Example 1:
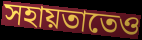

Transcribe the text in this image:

সহায়তাতেও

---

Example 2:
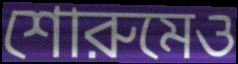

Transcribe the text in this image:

শোরুমেও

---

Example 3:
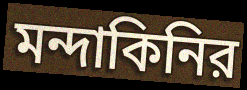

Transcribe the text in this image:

মন্দাকিনির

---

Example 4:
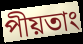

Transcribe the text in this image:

পীয়তাং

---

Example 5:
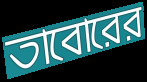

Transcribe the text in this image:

তাবোরের